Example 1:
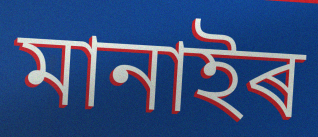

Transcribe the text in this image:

মানাইৰ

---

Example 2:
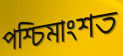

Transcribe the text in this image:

পশ্চিমাংশত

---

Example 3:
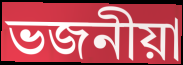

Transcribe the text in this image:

ভজনীয়া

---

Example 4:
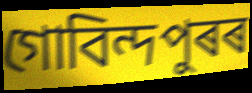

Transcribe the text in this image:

গোবিন্দপুৰৰ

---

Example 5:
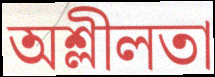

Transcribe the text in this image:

অশ্লীলতা